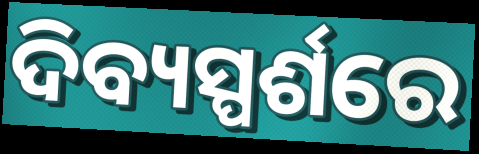
ଦିବ୍ୟସ୍ପର୍ଶରେ